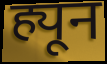
ह्यून